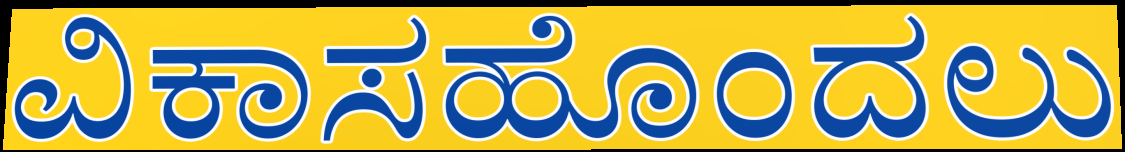
ವಿಕಾಸಹೊಂದಲು